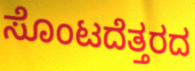
ಸೊಂಟದೆತ್ತರದ